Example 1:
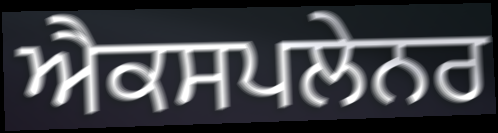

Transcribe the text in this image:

ਐਕਸਪਲੇਨਰ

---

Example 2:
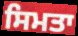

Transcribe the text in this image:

ਸਿਮਤਾ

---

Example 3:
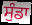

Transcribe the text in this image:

ਸੁੰਡਾ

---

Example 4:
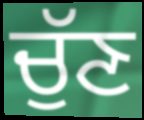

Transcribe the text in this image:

ਚੁੱਣ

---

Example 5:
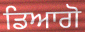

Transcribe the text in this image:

ਡਿਆਗੋ